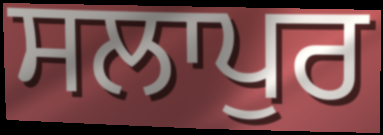
ਸਲਾਪੁਰ